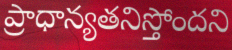
ప్రాధాన్యతనిస్తోందని